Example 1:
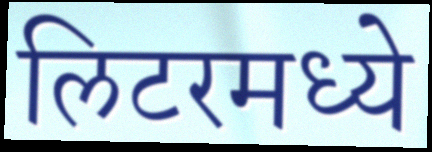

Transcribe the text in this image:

लिटरमध्ये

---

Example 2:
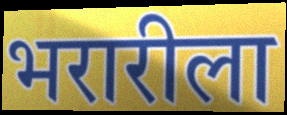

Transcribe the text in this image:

भरारीला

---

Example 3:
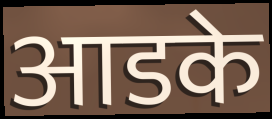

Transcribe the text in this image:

आडके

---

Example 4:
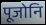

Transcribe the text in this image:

पूजोनि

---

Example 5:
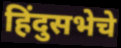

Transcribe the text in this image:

हिंदुसभेचे